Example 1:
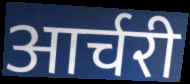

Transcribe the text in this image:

आर्चरी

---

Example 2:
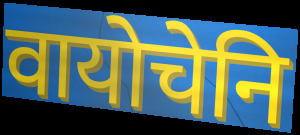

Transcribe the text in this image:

वायोचेनि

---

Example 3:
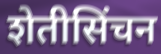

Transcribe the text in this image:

शेतीसिंचन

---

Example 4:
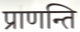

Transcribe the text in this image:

प्राणन्ति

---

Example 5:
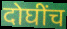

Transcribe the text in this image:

दोघींच